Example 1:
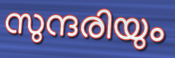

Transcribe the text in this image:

സുന്ദരിയും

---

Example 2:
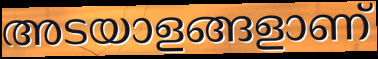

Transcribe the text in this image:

അടയാളങ്ങളാണ്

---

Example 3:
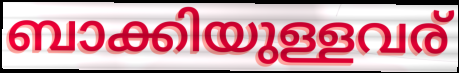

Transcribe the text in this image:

ബാക്കിയുള്ളവര്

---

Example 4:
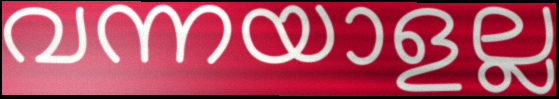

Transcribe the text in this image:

വന്നയാളല്ല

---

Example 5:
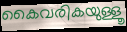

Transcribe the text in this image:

കൈവരികയുള്ളൂ